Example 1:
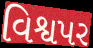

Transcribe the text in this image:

વિશ્વપર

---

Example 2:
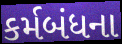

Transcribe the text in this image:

કર્મબંધના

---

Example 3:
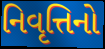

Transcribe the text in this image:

નિવૃત્તિનો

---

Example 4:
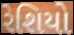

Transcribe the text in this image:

રેશિયો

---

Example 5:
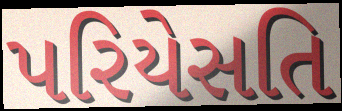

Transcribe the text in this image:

પરિયેસતિ